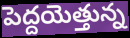
పెద్దయెత్తున్న